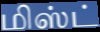
மிஸ்ட்